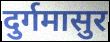
दुर्गमासुर